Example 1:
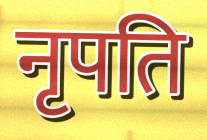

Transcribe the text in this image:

नृपति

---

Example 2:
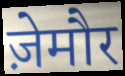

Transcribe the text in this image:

ज़ेमौर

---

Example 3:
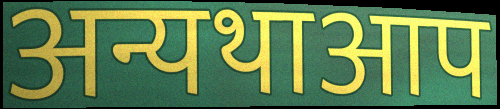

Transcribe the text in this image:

अन्यथाआप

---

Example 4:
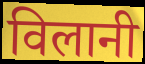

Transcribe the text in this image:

विलानी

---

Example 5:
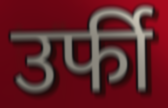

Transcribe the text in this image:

उर्फी